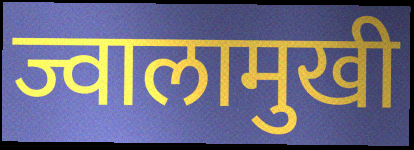
ज्वालामुखी